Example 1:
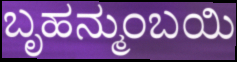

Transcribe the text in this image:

ಬೃಹನ್ಮುಂಬಯಿ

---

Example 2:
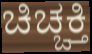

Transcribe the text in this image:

ಚಿಚ್ಚಕ್ತಿ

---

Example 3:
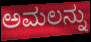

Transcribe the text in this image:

ಅಮಲನ್ನು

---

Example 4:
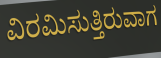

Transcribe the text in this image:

ವಿರಮಿಸುತ್ತಿರುವಾಗ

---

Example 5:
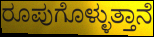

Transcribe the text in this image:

ರೂಪುಗೊಳ್ಳುತ್ತಾನೆ